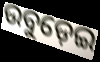
ଉବୁଡ଼େଇ